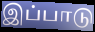
இப்பாடு